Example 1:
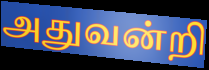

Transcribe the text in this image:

அதுவன்றி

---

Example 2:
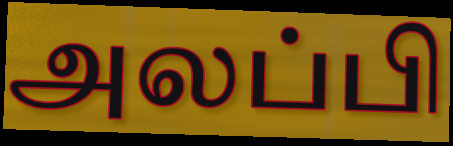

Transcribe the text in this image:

அலப்பி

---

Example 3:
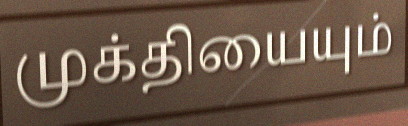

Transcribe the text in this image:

முக்தியையும்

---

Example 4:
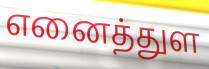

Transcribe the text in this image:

எனைத்துள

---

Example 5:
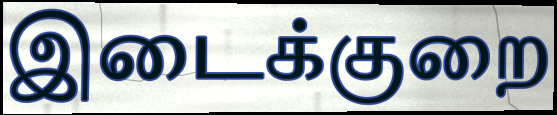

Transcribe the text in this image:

இடைக்குறை